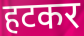
हटकर